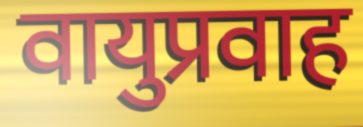
वायुप्रवाह